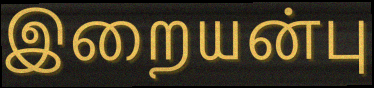
இறையன்பு